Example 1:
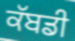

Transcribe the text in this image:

ਕੱਬਡੀ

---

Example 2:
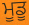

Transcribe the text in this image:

ਮੂਡੂ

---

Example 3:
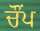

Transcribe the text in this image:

ਚੌਂਪ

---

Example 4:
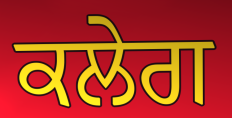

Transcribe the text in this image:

ਕਲੇਗ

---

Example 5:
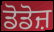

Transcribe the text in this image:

ਡੋਡੋਜ਼